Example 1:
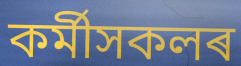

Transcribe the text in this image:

কৰ্মীসকলৰ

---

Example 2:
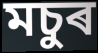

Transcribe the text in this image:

মচুৰ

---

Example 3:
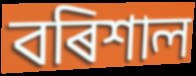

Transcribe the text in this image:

বৰিশাল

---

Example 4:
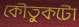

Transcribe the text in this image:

কৌতুকটো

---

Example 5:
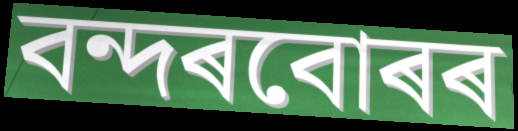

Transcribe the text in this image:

বন্দৰবোৰৰ